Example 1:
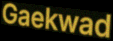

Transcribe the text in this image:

Gaekwad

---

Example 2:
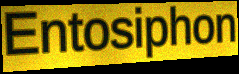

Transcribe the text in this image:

Entosiphon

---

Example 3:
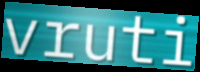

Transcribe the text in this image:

vruti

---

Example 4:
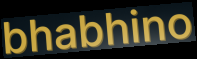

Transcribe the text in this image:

bhabhino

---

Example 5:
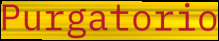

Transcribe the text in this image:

Purgatorio